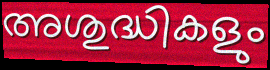
അശുദ്ധികളും